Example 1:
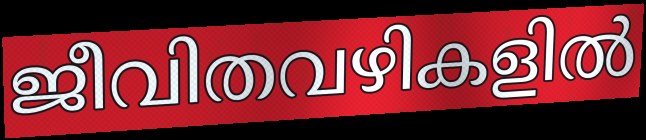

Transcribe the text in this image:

ജീവിതവഴികളിൽ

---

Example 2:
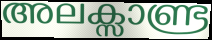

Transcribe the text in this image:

അലക്സാണ്ട്ര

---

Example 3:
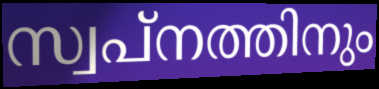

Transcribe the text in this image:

സ്വപ്നത്തിനും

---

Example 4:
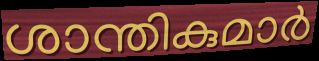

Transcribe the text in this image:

ശാന്തികുമാർ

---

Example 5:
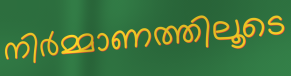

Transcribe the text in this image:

നിർമ്മാണത്തിലൂടെ